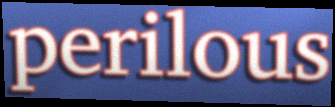
perilous